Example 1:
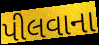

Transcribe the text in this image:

પીલવાના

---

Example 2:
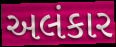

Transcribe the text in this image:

અલંકાર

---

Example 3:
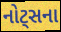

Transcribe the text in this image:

નોટ્સના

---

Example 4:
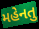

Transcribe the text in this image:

મહેનતુ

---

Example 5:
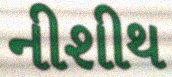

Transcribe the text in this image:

નીશીથ